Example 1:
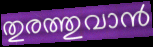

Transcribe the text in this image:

തുരത്തുവാൻ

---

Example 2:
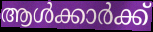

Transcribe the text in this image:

ആൾക്കാർക്ക്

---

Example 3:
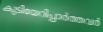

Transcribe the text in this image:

കുടിയേറിപ്പാർത്തവർ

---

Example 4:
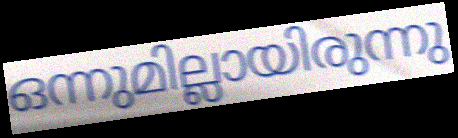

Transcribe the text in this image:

ഒന്നുമില്ലായിരുന്നു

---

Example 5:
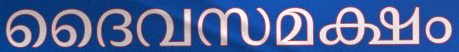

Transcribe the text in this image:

ദൈവസമക്ഷം